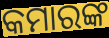
କମାରଙ୍କ